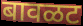
बावळट